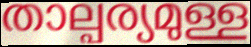
താല്പര്യമുള്ള